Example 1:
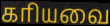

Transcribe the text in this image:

கரியவை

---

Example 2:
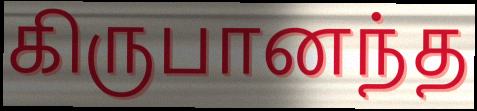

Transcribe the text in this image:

கிருபானந்த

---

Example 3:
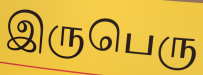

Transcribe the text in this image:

இருபெரு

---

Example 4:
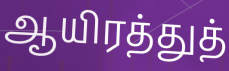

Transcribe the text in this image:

ஆயிரத்துத்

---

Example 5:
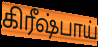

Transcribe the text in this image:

கிரீஷ்பாய்